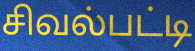
சிவல்பட்டி